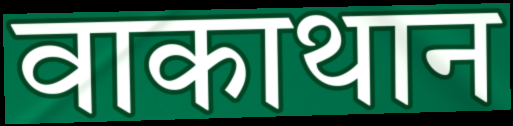
वाकाथान